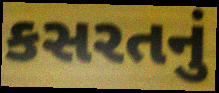
કસરતનું